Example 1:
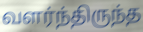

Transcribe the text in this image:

வளர்ந்திருந்த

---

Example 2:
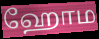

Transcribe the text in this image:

ஹோம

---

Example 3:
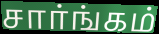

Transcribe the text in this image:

சார்ங்கம்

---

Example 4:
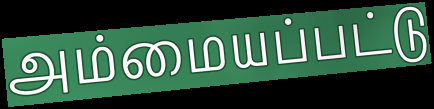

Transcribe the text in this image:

அம்மையப்பட்டு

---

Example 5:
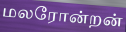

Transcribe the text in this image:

மலரோன்றன்